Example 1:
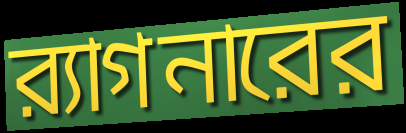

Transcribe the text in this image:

র‍্যাগনারের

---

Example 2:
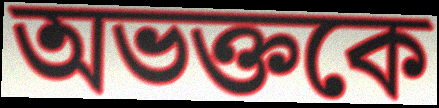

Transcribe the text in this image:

অভক্তকে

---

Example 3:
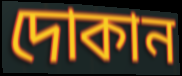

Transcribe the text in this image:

দোকান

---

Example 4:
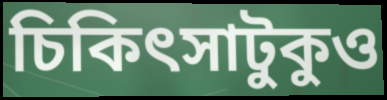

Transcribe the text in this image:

চিকিৎসাটুকুও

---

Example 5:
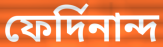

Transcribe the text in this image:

ফের্দিনান্দ